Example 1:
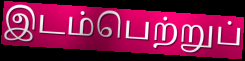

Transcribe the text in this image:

இடம்பெற்றுப்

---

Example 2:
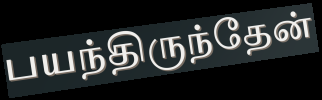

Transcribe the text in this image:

பயந்திருந்தேன்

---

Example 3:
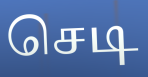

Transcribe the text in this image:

செடி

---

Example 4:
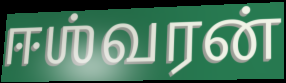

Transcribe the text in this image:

ஈஶ்வரன்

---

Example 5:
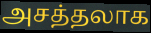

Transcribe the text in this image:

அசத்தலாக